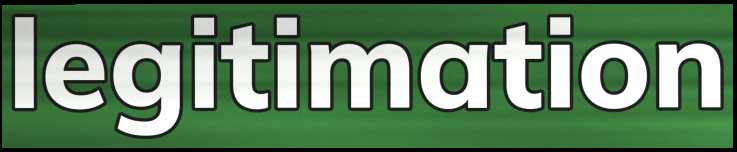
legitimation